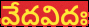
వేదవిదః